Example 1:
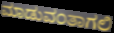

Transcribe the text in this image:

ಮಾಡುವಂತಾಗಲಿ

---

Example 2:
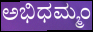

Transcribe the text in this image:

ಅಭಿಧಮ್ಮಂ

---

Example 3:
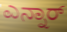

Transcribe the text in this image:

ಎನ್ನಾರ್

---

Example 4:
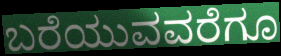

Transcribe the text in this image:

ಬರೆಯುವವರೆಗೂ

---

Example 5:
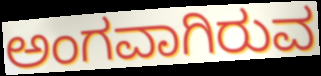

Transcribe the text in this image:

ಅಂಗವಾಗಿರುವ